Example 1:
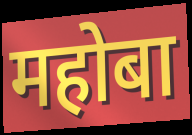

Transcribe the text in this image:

महोबा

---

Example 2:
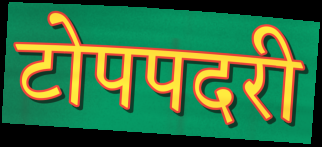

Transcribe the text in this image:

टोपपदरी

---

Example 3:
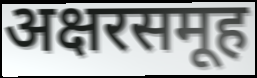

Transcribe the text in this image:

अक्षरसमूह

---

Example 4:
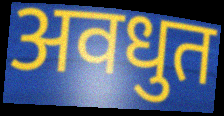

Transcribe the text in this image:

अवधुत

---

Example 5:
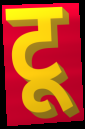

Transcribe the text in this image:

टू